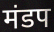
मंडप